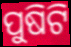
ପୁଷିଟି